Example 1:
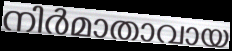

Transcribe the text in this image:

നിർമാതാവായ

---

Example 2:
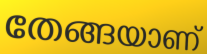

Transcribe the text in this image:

തേങ്ങയാണ്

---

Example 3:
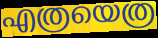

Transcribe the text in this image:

എത്രയെത്ര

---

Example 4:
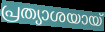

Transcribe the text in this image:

പ്രത്യാശയായ്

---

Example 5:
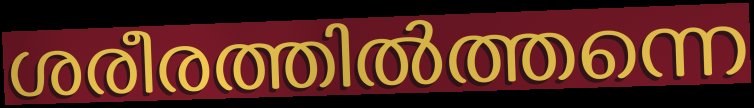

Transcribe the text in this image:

ശരീരത്തിൽത്തന്നെ